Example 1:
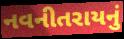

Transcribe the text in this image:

નવનીતરાયનું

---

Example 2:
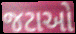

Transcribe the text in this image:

જટાઓ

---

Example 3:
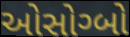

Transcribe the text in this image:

ઓસોગ્બો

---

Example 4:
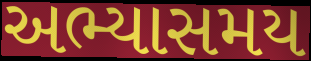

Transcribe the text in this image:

અભ્યાસમય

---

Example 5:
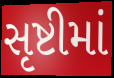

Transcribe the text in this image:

સૃષ્ટીમાં